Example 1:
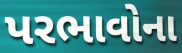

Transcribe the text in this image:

પરભાવોના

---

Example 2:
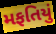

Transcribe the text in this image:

મફતિયું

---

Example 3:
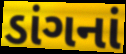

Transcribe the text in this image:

ડાંગનાં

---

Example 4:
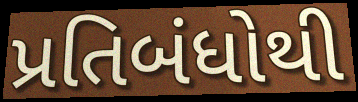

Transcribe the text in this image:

પ્રતિબંધોથી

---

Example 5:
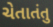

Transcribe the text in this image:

ચેતાતંતુ